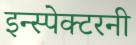
इन्स्पेक्टरनी